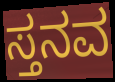
ಸ್ತನವ